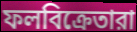
ফলবিক্রেতারা